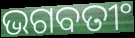
ଭଗବତୀଂ